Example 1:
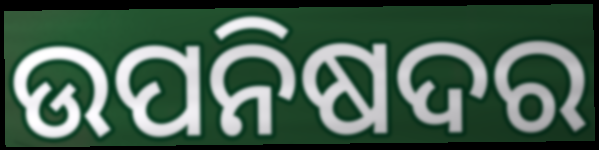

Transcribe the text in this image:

ଉପନିଷଦର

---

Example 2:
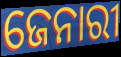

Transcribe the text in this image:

ଜେନାରୀ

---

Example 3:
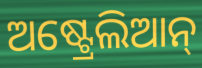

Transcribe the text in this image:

ଅଷ୍ଟ୍ରେଲିଆନ୍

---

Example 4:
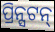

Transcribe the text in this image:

ପ୍ରିନ୍ସଟନ୍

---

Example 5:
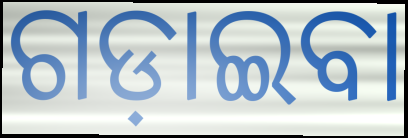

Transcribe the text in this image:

ଗଡ଼ାଇବା